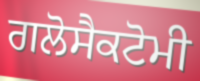
ਗਲੋਸੈਕਟੋਮੀ